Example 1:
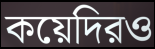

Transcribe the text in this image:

কয়েদিরও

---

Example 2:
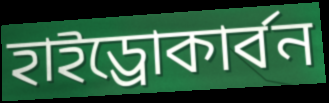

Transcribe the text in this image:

হাইড্রোকার্বন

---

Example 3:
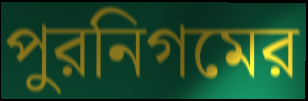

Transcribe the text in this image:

পুরনিগমের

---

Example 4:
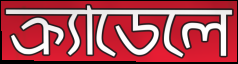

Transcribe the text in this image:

ক্র্যাডেলে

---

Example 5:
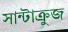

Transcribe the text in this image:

সান্টাক্রুজ